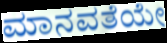
ಮಾನವತೆಯೇ